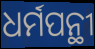
ଧର୍ମପନ୍ଥୀ